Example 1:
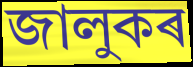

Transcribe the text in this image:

জালুকৰ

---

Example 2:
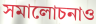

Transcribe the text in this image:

সমালোচনাও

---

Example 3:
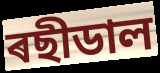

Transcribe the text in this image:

ৰছীডাল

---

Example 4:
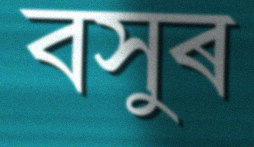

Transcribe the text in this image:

বসুৰ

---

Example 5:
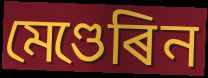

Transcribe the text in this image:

মেণ্ডেৰিন